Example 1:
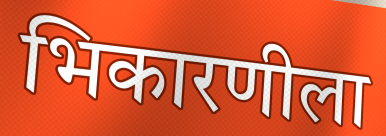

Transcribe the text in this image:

भिकारणीला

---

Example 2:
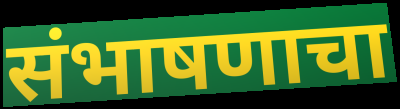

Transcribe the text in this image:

संभाषणाचा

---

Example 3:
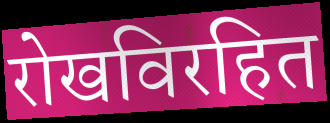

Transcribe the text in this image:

रोखविरहित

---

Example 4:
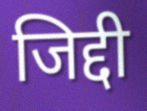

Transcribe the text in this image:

जिद्दी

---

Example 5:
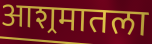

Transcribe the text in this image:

आश्रमातला